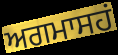
ਅਗਮਾਸਹਂ